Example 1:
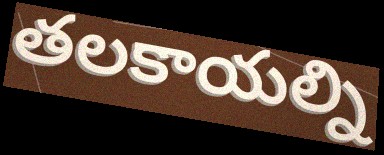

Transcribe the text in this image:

తలకాయల్ని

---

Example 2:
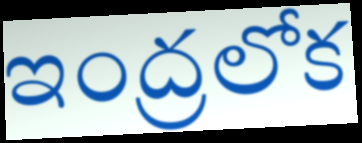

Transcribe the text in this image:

ఇంద్రలోక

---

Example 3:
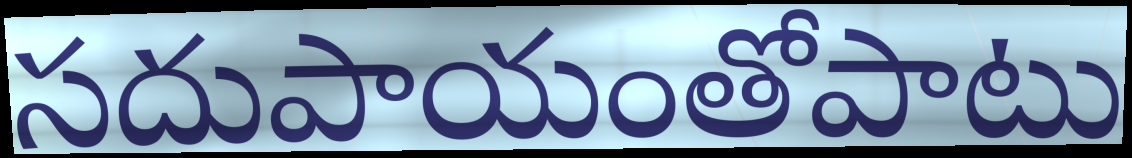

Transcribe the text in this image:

సదుపాయంతోపాటు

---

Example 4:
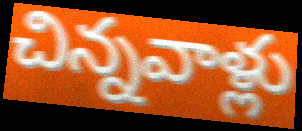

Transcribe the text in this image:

చిన్నవాళ్లు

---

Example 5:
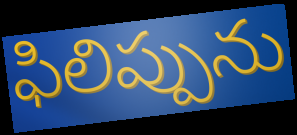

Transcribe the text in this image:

ఫిలిప్పును